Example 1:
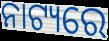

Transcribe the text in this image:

ନାଟ୍ୟରେ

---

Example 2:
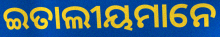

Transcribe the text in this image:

ଇତାଲୀୟମାନେ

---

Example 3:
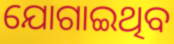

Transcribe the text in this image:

ଯୋଗାଇଥିବ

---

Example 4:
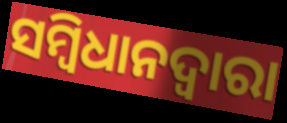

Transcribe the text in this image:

ସମ୍ବିଧାନଦ୍ବାରା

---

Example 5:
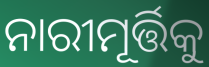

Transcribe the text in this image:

ନାରୀମୂର୍ତ୍ତିକୁ